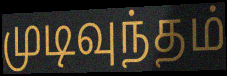
முடிவுந்தம்